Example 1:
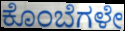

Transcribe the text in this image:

ಕೊಂಬೆಗಳೇ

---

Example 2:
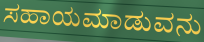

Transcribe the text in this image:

ಸಹಾಯಮಾಡುವನು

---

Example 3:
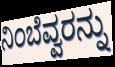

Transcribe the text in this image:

ನಿಂಬೆವ್ವರನ್ನು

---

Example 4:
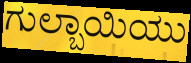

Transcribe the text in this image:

ಗುಲ್ಬಾಯಿಯು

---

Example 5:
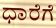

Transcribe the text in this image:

ಧಾರೆಗೆ